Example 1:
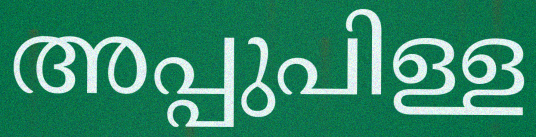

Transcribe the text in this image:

അപ്പുപിള്ള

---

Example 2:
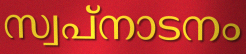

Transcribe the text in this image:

സ്വപ്നാടനം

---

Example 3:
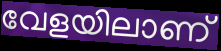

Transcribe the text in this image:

വേളയിലാണ്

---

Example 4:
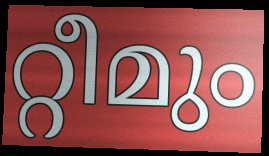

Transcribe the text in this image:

റ്റീമും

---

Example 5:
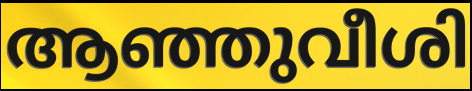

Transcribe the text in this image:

ആഞ്ഞുവീശി